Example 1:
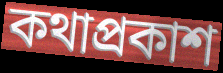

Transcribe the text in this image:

কথাপ্রকাশ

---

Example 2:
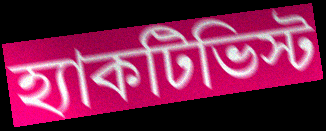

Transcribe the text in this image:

হ্যাকটিভিস্ট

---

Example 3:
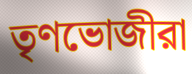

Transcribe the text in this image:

তৃণভোজীরা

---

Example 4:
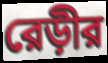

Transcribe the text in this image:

রেড়ীর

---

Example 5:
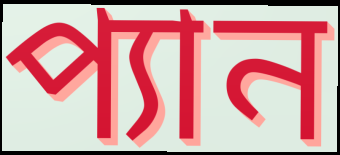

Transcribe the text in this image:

প্যান